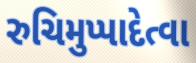
રુચિમુપ્પાદેત્વા